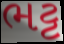
ભટ્ટ